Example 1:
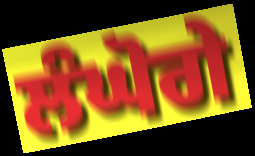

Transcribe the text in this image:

ਲੰਘੋਗੇ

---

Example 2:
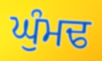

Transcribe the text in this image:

ਘੁੰਮਢ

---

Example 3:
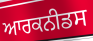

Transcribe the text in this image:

ਆਰਕਨੀਡਸ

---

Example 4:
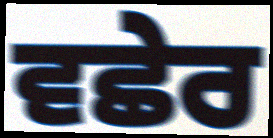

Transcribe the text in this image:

ਵਛੇਰ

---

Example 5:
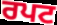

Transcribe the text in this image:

ਰਪਟ